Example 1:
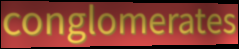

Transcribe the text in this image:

conglomerates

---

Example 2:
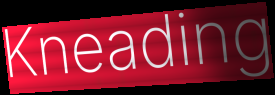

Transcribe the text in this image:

Kneading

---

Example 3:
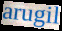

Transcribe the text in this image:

arugil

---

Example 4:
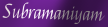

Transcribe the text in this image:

Subramaniyam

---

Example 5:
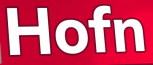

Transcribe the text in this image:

Hofn